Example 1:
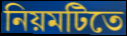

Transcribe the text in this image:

নিয়মটিতে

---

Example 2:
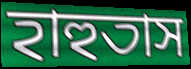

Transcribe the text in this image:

হাহুতাস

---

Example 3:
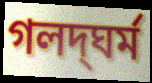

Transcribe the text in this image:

গলদ্‌ঘর্ম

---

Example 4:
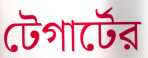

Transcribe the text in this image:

টেগার্টের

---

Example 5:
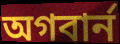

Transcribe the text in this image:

অগবার্ন